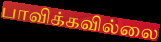
பாவிக்கவில்லை